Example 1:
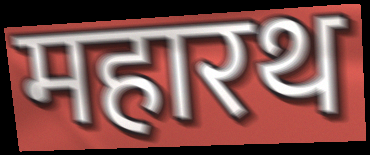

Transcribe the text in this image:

महारथ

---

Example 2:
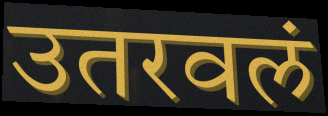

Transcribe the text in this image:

उतरवलं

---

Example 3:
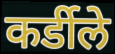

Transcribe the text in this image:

कर्डीले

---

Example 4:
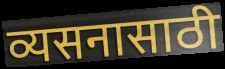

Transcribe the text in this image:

व्यसनासाठी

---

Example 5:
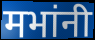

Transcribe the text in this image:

मभांनी